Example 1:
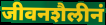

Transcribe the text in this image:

जीवनशैलीनं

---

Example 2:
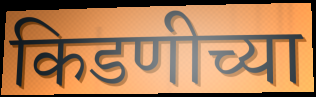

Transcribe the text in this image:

किडणीच्या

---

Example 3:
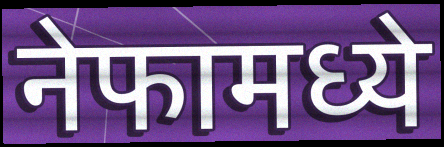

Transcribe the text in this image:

नेफामध्ये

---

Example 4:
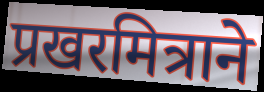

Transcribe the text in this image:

प्रखरमित्राने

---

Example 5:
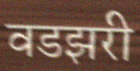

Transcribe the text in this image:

वडझरी